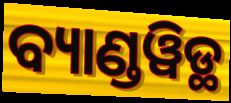
ବ୍ୟାଣ୍ଡୱିଡ୍ଥ